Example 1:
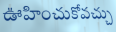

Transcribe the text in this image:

ఊహించుకోవచ్చు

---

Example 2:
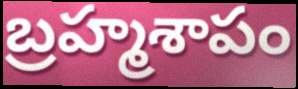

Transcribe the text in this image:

బ్రహ్మశాపం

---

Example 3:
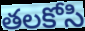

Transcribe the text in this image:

తలకోసి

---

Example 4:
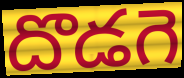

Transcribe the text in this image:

దొడగె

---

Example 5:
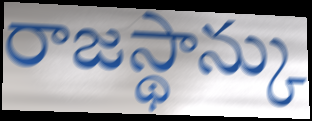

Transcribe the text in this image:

రాజస్థాన్కు